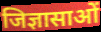
जिज्ञासाओं